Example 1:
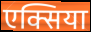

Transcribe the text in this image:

एक्सिया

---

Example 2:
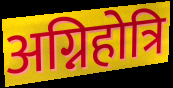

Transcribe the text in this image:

अग्निहोत्रि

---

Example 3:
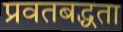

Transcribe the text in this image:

प्रवतबद्धता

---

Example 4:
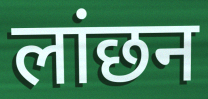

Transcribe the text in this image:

लांछन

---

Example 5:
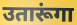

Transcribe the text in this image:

उतारूंगा